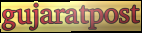
gujaratpost